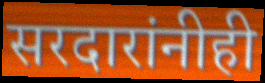
सरदारांनीही